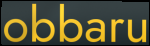
obbaru